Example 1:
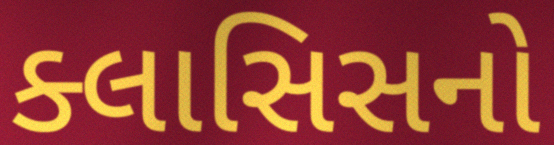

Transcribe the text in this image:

ક્લાસિસનો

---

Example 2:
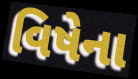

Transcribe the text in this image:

વિષેના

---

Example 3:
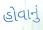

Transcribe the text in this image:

હોવાનું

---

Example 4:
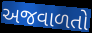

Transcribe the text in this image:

અજવાળતો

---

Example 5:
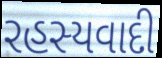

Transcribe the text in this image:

રહસ્યવાદી